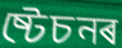
ষ্টেচনৰ